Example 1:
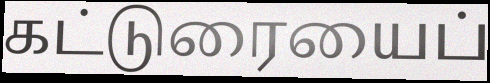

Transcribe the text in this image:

கட்டுரையைப்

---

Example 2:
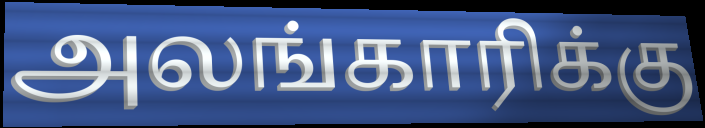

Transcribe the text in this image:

அலங்காரிக்கு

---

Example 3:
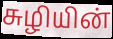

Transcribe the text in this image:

சுழியின்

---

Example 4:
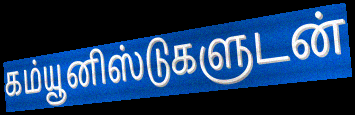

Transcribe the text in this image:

கம்யூனிஸ்டுகளுடன்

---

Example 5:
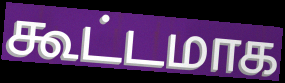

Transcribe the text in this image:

கூட்டமாக